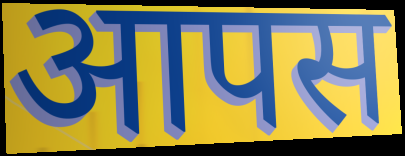
आपस